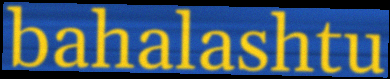
bahalashtu